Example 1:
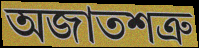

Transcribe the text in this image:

অজাতশত্রু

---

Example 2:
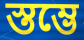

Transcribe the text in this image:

স্তম্ভে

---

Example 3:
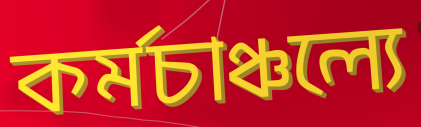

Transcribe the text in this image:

কর্মচাঞ্চল্যে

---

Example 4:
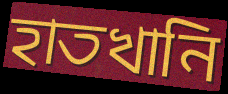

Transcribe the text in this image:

হাতখানি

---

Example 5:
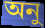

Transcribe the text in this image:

অনু